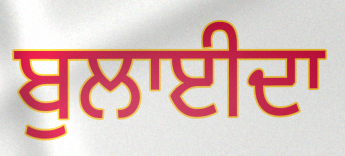
ਬੁਲਾਈਦਾ